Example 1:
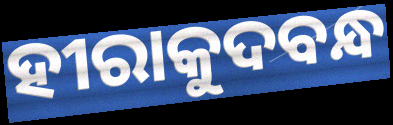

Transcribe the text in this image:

ହୀରାକୁଦବନ୍ଧ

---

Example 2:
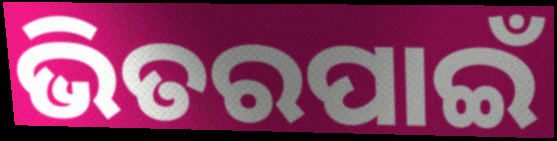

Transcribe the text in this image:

ଭିତରପାଇଁ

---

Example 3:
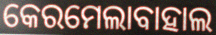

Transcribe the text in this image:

କେରମେଲାବାହାଲ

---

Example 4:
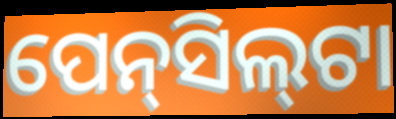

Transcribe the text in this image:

ପେନ୍‌ସିଲ୍‍ଟା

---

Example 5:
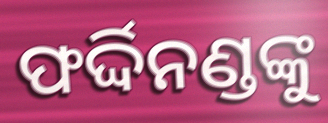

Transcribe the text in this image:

ଫର୍ଦ୍ଦିନଣ୍ଡଙ୍କୁ